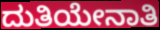
ದುತಿಯೇನಾತಿ